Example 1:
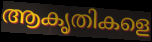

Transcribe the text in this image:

ആകൃതികളെ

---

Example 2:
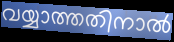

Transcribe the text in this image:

വയ്യാത്തതിനാൽ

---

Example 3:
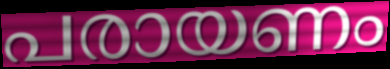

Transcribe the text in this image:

പരായണം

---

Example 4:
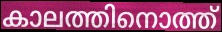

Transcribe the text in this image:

കാലത്തിനൊത്ത്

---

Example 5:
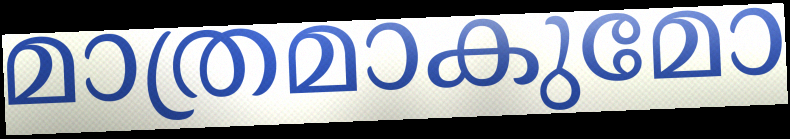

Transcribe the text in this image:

മാത്രമാകുമോ